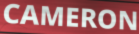
CAMERON